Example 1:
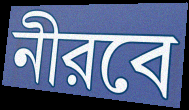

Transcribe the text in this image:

নীরবে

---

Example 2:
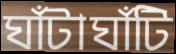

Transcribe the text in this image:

ঘাঁটাঘাঁটি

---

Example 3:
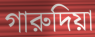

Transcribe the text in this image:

গারুদিয়া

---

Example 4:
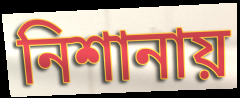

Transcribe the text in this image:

নিশানায়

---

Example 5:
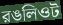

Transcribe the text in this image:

রঙলিওট